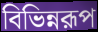
বিভিন্নরূপ